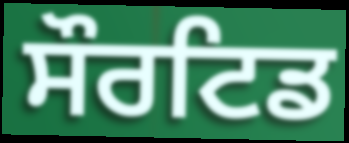
ਸੌਰਟਿਡ